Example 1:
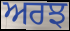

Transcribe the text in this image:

ਅਰਝ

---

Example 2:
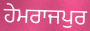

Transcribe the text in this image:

ਹੇਮਰਾਜਪੁਰ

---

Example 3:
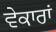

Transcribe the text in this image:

ਵੇਕਾਰਾਂ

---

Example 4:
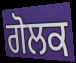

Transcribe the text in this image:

ਗੋਲਕ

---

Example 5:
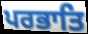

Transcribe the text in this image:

ਪਰਭਾਤਿ